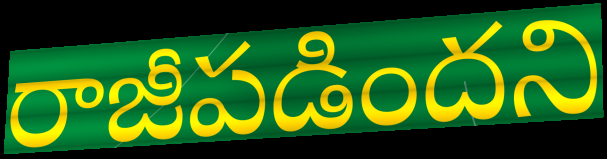
రాజీపడిందని